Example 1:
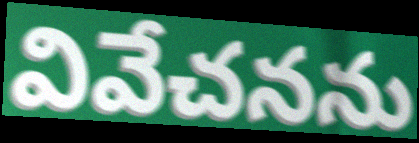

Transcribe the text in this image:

వివేచనను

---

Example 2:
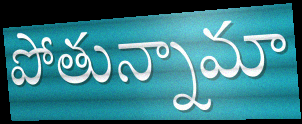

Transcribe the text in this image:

పోతున్నామా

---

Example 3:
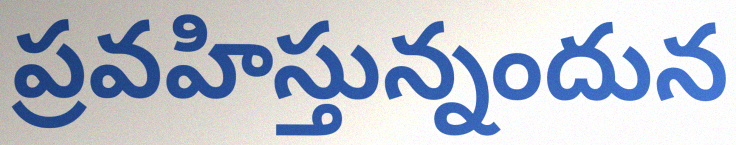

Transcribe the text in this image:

ప్రవహిస్తున్నందున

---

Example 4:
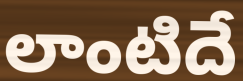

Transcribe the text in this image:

లాంటిదే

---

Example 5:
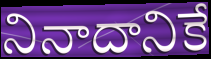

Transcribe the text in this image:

నినాదానికే